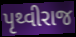
પૃથ્વીરાજ